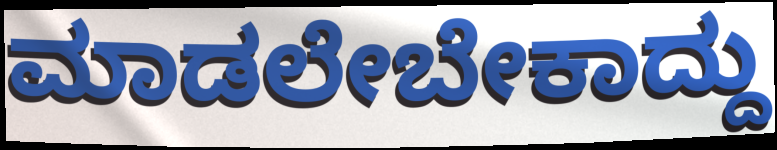
ಮಾಡಲೇಬೇಕಾದ್ದು